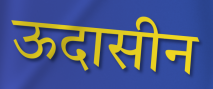
ऊदासीन